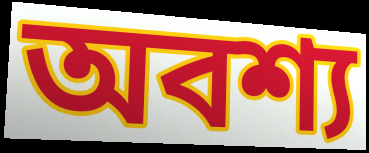
অবশ্য